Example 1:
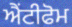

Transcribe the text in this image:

ਐਂਟੀਫੋਮ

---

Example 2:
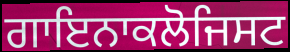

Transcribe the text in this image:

ਗਾਇਨਾਕਲੋਜਿਸਟ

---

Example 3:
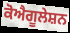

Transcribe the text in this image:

ਕੋਐਗੂਲੇਸ਼ਨ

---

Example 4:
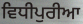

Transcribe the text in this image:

ਵਿਧੀਪੁਰੀਆ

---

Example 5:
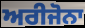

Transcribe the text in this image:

ਅਰੀਜੋਨਾ